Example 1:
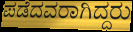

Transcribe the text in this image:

ಪಡೆದವರಾಗಿದ್ದರು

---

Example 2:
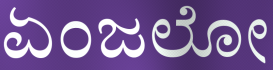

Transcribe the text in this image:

ಏಂಜಲೋ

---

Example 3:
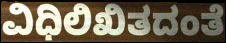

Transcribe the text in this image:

ವಿಧಿಲಿಖಿತದಂತೆ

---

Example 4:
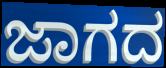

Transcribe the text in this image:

ಜಾಗದ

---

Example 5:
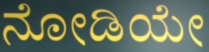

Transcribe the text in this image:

ನೋಡಿಯೇ